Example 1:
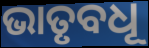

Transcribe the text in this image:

ଭାତୃବଧୂ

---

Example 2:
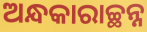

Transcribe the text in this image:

ଅନ୍ଧକାରାଚ୍ଛନ୍ନ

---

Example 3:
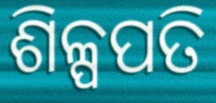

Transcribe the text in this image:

ଶିଳ୍ପପତି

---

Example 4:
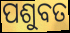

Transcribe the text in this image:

ପଶୁବତ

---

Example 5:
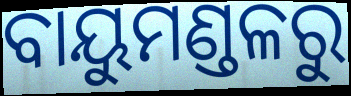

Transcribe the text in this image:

ବାୟୁମଣ୍ଡଳରୁ